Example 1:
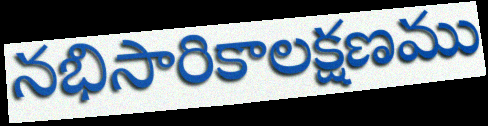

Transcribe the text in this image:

నభిసారికాలక్షణము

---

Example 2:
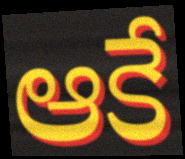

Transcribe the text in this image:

ఆకే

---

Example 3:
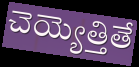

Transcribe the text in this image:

చెయ్యెత్తితే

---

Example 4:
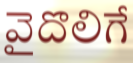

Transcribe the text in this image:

వైదొలిగే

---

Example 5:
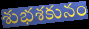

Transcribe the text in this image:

శుభశకునం